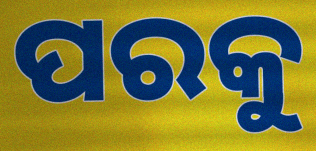
ପରକୁ